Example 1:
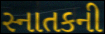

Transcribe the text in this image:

સ્નાતકની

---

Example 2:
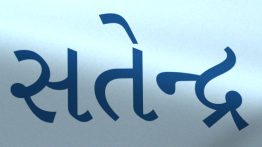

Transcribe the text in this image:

સતેન્દ્ર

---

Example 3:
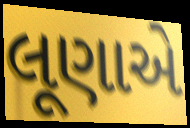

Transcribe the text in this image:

લૂણાએ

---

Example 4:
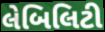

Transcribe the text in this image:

લેબિલિટી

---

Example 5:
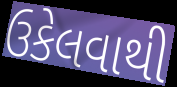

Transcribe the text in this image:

ઉકેલવાથી